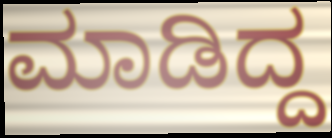
ಮಾಡಿದ್ದ